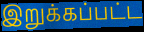
இறுக்கப்பட்ட